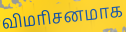
விமரிசனமாக